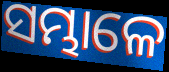
ସମ୍ଭାଳେ